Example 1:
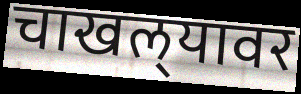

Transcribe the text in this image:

चाखल्यावर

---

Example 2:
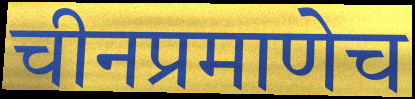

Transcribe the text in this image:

चीनप्रमाणेच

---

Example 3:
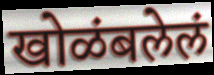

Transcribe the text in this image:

खोळंबलेलं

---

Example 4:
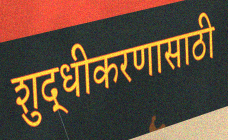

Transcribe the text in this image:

शुद्धीकरणासाठी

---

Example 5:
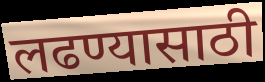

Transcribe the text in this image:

लढण्यासाठी